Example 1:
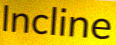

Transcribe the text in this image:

Incline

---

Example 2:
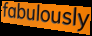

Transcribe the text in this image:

fabulously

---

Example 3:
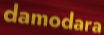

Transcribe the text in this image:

damodara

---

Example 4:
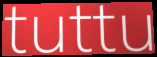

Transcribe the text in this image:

tuttu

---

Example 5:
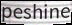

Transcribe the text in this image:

peshine